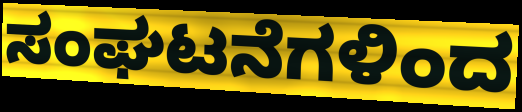
ಸಂಘಟನೆಗಳಿಂದ